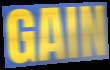
GAIN